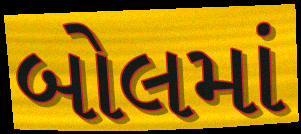
બોલમાં